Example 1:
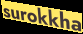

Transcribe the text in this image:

surokkha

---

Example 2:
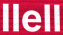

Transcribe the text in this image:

Ilell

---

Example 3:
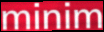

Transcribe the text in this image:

minim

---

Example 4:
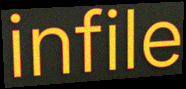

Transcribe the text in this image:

infile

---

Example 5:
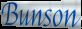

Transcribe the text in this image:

Bunson